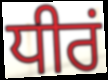
ਧੀਰਂ